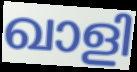
ഖാളി